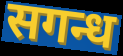
सगन्ध